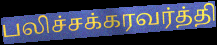
பலிச்சக்கரவர்த்தி